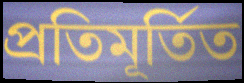
প্ৰতিমূৰ্তিত